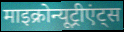
माइक्रोन्यूट्रीएंट्स